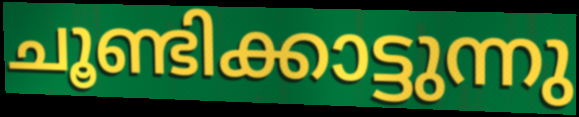
ചൂണ്ടിക്കാട്ടുന്നു